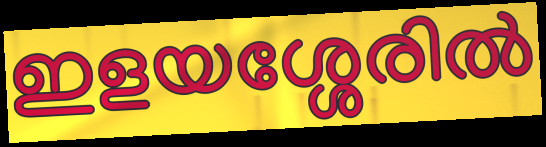
ഇളയശ്ശേരിൽ